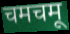
चमचमू